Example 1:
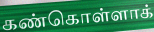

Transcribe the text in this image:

கண்கொள்ளாக்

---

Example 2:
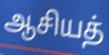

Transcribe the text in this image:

ஆசியத்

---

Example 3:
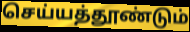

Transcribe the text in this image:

செய்யத்தூண்டும்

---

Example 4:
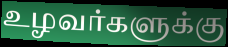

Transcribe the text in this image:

உழவர்களுக்கு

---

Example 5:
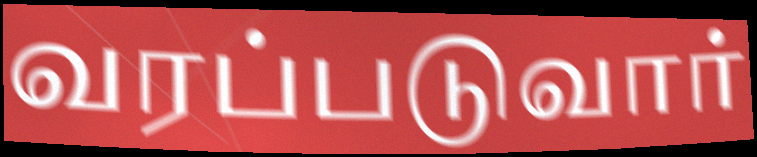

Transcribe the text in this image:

வரப்படுவார்